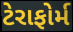
ટેરાફોર્મ